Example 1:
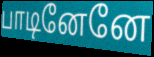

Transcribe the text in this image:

பாடினேனே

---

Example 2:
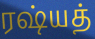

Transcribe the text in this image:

ரஷ்யத்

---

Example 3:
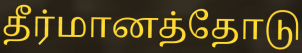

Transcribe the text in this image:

தீர்மானத்தோடு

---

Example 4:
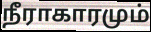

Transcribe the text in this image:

நீராகாரமும்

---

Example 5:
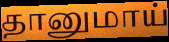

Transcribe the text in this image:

தானுமாய்